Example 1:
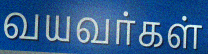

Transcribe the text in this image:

வயவர்கள்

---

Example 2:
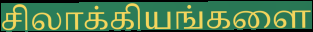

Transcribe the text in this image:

சிலாக்கியங்களை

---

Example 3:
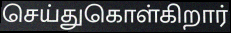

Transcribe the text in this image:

செய்துகொள்கிறார்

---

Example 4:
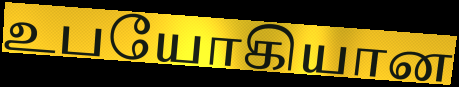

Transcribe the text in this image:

உபயோகியான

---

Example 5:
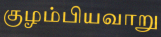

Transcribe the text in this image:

குழம்பியவாறு